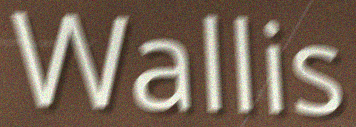
Wallis